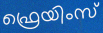
ഫ്രെയിംസ്